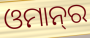
ଓମାନ୍‌ର